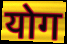
योग